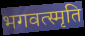
भगवत्स्मृति